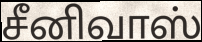
சீனிவாஸ்